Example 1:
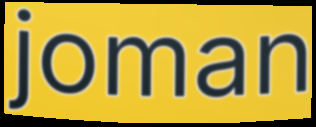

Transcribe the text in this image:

joman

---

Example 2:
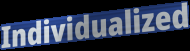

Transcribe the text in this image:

Individualized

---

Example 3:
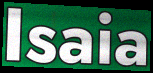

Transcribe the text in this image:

Isaia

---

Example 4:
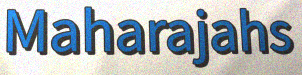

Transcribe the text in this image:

Maharajahs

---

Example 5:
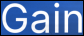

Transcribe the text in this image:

Gain